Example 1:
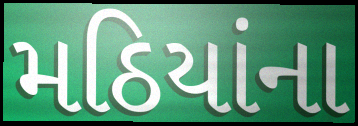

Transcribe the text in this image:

મઠિયાંના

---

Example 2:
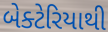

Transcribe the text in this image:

બેક્ટેરિયાથી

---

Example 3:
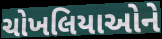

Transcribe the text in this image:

ચોખલિયાઓને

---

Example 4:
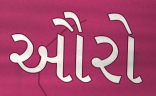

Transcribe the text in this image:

ઔરો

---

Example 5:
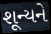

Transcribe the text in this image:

શૂન્યને